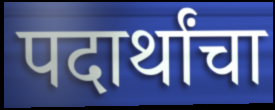
पदार्थांचा